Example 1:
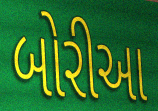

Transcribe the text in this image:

બોરીઆ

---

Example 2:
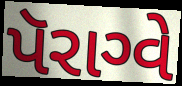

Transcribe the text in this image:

પૅરાગ્વે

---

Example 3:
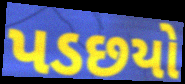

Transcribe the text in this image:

પડછયો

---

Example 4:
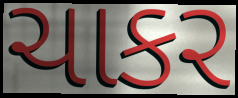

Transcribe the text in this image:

ચાકર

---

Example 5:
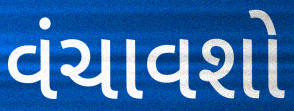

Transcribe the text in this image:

વંચાવશો